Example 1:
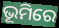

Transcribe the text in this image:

ଭୂମିରେ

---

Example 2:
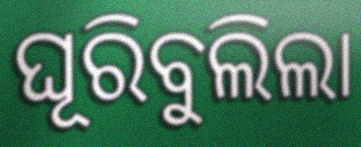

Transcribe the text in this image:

ଘୂରିବୁଲିଲା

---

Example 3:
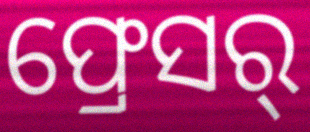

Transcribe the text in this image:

ଫ୍ରେସର୍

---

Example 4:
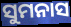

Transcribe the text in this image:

ସୁମନାସ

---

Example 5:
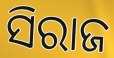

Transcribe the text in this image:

ସିରାଜ